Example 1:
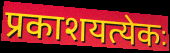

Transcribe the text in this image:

प्रकाशयत्येकः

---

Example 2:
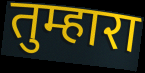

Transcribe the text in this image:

तुम्‍हारा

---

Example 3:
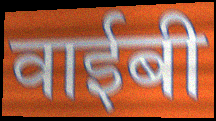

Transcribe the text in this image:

वाईबी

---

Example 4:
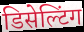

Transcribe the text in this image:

डिसेल्टिंग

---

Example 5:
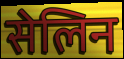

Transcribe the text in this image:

सेलिन